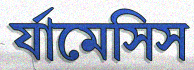
র্যামেসিস